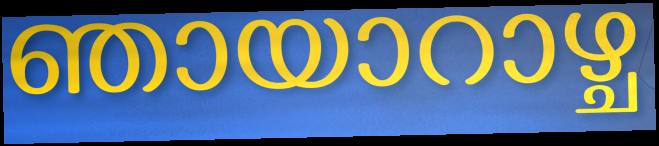
ഞായാറാഴ്ച